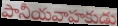
పానీయవాహకుడు